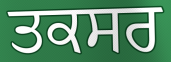
ਤਕਸਰ